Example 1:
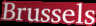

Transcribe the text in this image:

Brussels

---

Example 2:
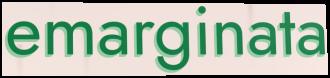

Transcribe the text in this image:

emarginata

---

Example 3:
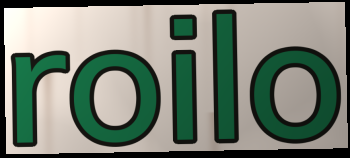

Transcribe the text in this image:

roilo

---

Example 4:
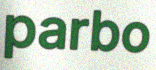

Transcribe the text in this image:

parbo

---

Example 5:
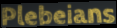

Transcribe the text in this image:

Plebeians